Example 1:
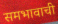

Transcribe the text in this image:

समभावाची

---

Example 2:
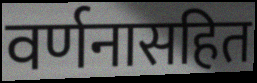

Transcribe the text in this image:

वर्णनासहित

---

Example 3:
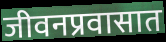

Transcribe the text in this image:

जीवनप्रवासात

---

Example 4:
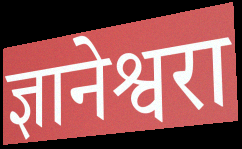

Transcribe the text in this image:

ज्ञानेश्वरा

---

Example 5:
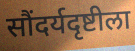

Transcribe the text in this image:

सौंदर्यदृष्टीला